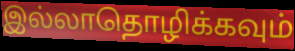
இல்லாதொழிக்கவும்